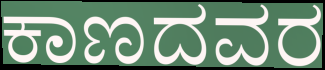
ಕಾಣದವರ